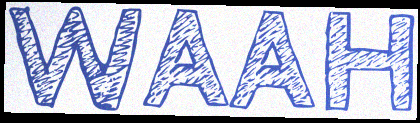
WAAH